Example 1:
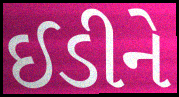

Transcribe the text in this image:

ઈડીને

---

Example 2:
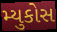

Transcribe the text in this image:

મ્યુકોસ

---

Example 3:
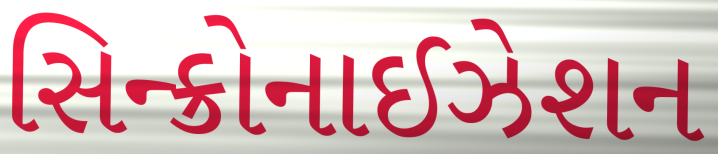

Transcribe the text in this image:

સિન્ક્રોનાઈઝેશન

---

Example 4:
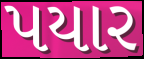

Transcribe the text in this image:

પયાર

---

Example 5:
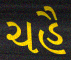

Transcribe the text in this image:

ચહૈ